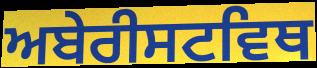
ਅਬੇਰੀਸਟਵਿਥ